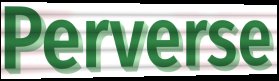
Perverse